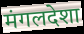
मंगलदेशा